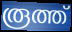
രൂത്ത്